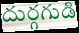
దుర్గగుడి